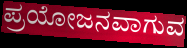
ಪ್ರಯೋಜನವಾಗುವ